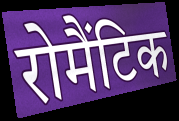
रोमैंटिक